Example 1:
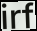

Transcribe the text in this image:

irf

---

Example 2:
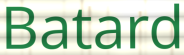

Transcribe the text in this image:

Batard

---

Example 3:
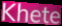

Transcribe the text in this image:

Khete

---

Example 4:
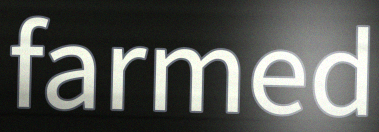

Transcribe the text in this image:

farmed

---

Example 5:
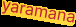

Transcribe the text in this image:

yaramana